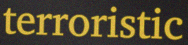
terroristic